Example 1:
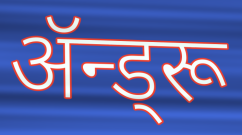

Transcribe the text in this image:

ॲन्ड्रू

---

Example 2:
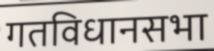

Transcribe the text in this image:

गतविधानसभा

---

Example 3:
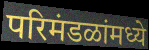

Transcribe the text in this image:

परिमंडळांमध्ये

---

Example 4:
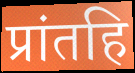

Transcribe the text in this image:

प्रांतहि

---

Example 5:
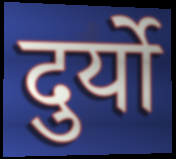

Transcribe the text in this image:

दुर्यो